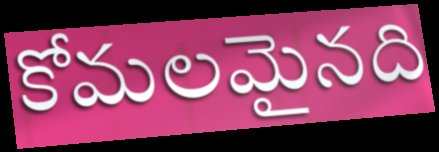
కోమలమైనది